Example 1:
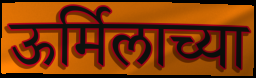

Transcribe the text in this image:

ऊर्मिलाच्या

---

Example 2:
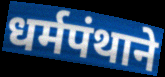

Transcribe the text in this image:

धर्मपंथाने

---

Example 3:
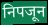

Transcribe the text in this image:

निपजून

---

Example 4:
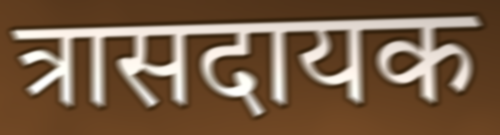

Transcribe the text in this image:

त्रासदायक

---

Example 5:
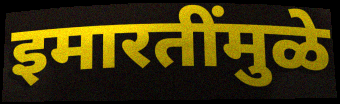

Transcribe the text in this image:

इमारतींमुळे